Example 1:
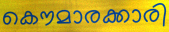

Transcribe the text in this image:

കൌമാരക്കാരി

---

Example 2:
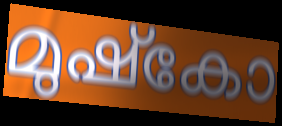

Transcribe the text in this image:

മുഷ്കോ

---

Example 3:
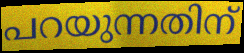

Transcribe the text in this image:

പറയുന്നതിന്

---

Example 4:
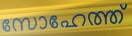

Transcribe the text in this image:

സോഹേത്ത്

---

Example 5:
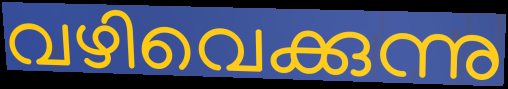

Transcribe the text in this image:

വഴിവെക്കുന്നു